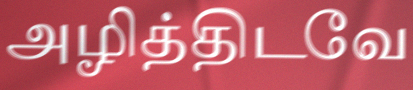
அழித்திடவே